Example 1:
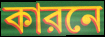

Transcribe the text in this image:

কারনে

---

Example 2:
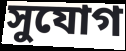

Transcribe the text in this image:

সুযোগ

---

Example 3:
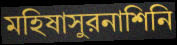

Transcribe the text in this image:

মহিষাসুরনাশিনি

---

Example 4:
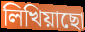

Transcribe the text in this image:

লিখিয়াছো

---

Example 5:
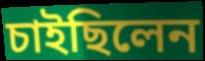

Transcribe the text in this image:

চাইছিলেন